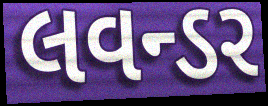
લવન્ડર